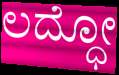
ಲದ್ಧೋ